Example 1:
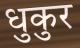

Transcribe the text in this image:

धुकुर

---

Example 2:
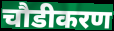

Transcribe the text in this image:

चौडीकरण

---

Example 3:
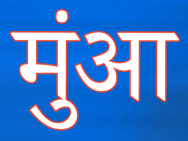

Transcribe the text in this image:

मुंआ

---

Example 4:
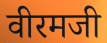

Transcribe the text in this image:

वीरमजी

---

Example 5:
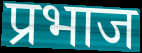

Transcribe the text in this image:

प्रभाज